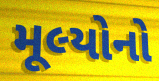
મૂલ્યોનો